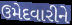
ઉમેદવારીને